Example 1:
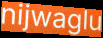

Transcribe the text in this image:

nijwaglu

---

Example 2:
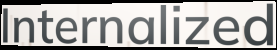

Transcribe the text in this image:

Internalized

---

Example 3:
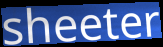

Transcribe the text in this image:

sheeter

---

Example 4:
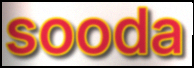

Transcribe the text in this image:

sooda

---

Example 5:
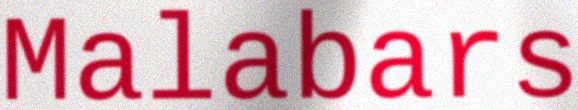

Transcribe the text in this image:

Malabars